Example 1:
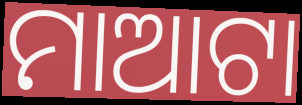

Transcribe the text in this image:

ମାଆଟା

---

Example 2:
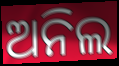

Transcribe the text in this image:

ଅନିଲ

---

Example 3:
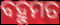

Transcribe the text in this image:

ବହୁମତ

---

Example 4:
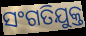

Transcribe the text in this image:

ସଂଗତିଯୁକ୍ତ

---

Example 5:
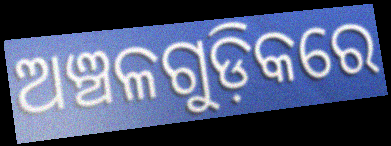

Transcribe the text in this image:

ଅଞ୍ଚଳଗୁଡ଼ିକରେ